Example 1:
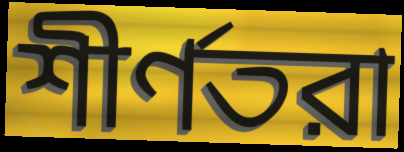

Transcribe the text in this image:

শীর্ণতরা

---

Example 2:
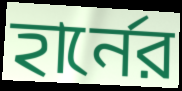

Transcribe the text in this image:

হার্নের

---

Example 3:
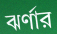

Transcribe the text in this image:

ঝর্ণার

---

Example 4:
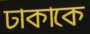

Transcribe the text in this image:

ঢাকাকে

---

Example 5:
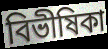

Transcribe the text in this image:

বিভীষিকা